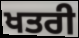
ਖਤਰੀ